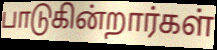
பாடுகின்றார்கள்